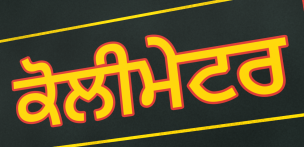
ਕੋਲੀਮੇਟਰ